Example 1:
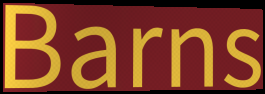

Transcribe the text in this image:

Barns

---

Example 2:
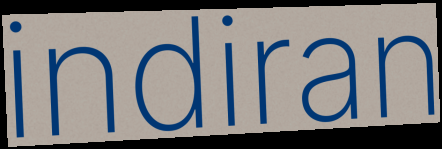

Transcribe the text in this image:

indiran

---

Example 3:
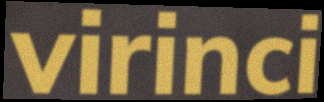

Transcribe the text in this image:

virinci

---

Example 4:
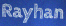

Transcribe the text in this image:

Rayhan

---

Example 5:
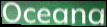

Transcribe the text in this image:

Oceana